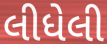
લીધેલી